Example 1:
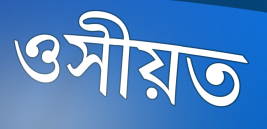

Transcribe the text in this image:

ওসীয়ত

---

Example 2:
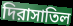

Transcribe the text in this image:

দিরাসাতিল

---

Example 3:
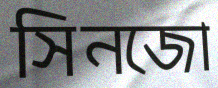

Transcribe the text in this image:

সিনজো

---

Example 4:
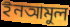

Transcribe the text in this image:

ইনআমুল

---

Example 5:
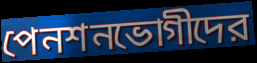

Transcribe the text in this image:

পেনশনভোগীদের